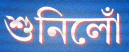
শুনিলোঁ